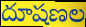
దూషణల